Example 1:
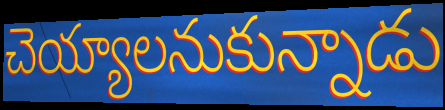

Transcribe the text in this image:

చెయ్యాలనుకున్నాడు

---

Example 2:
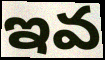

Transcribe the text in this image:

ఇవ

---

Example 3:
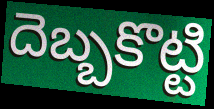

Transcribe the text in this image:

దెబ్బకొట్టి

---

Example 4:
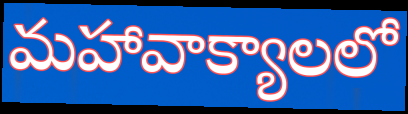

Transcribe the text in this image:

మహావాక్యాలలో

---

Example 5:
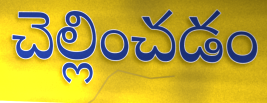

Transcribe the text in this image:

చెల్లించడం